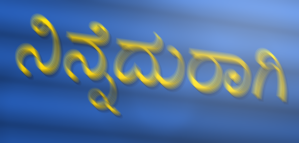
ನಿನ್ನೆದುರಾಗಿ